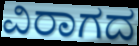
ವಿರಾಗದ